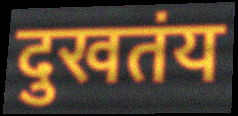
दुखतंय